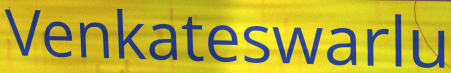
Venkateswarlu